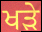
ਖਡ਼ੇ